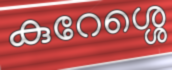
കുറേശ്ശെ